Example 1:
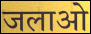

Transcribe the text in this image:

जलाओ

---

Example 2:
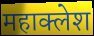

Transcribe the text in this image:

महाक्लेश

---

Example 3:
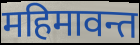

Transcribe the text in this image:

महिमावन्त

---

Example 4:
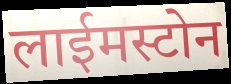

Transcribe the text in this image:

लाईमस्टोन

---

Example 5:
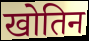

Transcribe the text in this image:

खोतिन